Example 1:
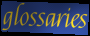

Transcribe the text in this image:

glossaries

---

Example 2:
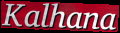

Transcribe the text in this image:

Kalhana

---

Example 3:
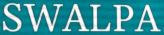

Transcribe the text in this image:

SWALPA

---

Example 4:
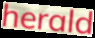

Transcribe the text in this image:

herald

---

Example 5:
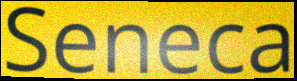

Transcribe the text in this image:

Seneca